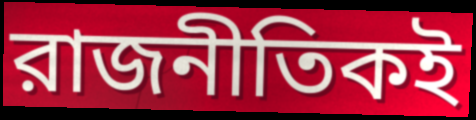
রাজনীতিকই